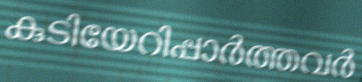
കുടിയേറിപ്പാർത്തവർ